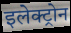
इलेक्ट्रोन